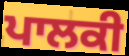
ਪਾਲਕੀ